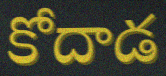
కోదాడ